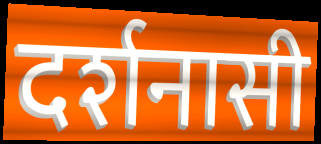
दर्शनासी